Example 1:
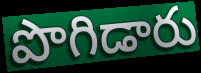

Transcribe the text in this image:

పొగిడారు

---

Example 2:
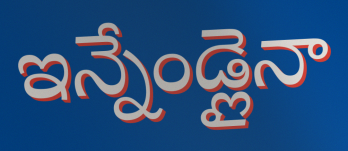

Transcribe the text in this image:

ఇన్నేండ్లైనా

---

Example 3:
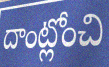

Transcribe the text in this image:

దాంట్లోంచి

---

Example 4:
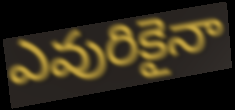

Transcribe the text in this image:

ఎవురికైనా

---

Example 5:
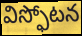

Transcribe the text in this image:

విస్ఫోటన